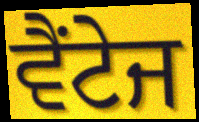
ਵੈਂਟੇਜ